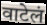
वाटेलं